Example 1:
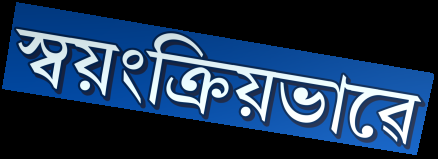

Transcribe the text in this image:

স্বয়ংক্ৰিয়ভাৱে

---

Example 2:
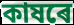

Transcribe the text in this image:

কাষৰে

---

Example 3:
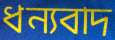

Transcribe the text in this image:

ধন্যবাদ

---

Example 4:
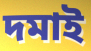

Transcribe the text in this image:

দমাই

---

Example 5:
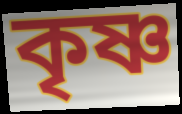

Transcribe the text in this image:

কৃষ্ণ